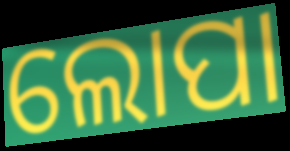
ଲୋପା